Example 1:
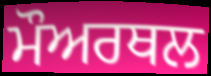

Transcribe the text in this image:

ਮੌਅਰਥਲ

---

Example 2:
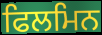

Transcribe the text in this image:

ਫਿਲਮਿਨ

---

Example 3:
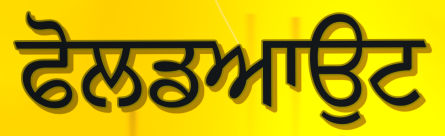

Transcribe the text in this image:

ਫੋਲਡਆਉਟ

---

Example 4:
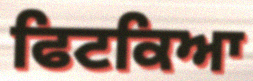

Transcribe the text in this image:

ਫਿਟਕਿਆ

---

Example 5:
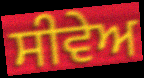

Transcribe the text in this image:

ਸੀਵੇਅ